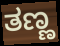
ತಣ್ಣ